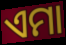
ଏମା